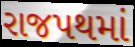
રાજપથમાં